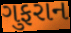
ગુફરાન